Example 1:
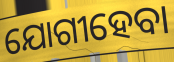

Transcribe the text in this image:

ଯୋଗୀହେବା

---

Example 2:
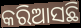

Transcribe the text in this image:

କରିଆସଛି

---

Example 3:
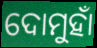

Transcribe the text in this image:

ଦୋମୁହାଁ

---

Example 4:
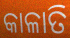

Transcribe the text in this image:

କାଳାତି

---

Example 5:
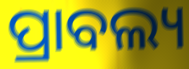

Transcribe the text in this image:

ପ୍ରାବଲ୍ୟ